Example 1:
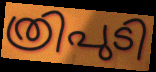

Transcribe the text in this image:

ത്രിപുടി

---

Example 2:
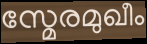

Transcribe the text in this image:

സ്മേരമുഖീം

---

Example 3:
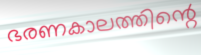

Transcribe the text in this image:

ഭരണകാലത്തിന്റെ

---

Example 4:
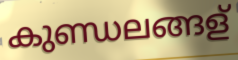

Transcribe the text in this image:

കുണ്ഡലങ്ങള്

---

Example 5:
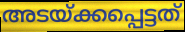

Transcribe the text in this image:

അടയ്ക്കപ്പെട്ടത്